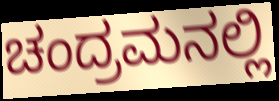
ಚಂದ್ರಮನಲ್ಲಿ